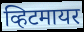
व्हिटमायर